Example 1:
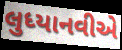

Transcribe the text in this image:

લુધ્યાનવીએ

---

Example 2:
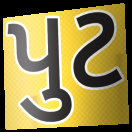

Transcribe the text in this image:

પુટ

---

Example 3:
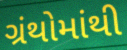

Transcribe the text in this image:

ગ્રંથોમાંથી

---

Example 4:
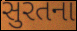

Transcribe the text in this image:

સુરતના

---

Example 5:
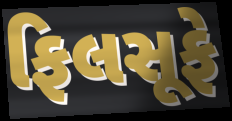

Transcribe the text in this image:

ફિલસૂફે